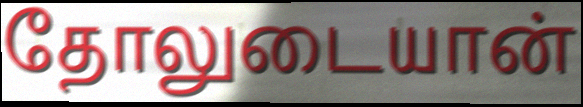
தோலுடையான்